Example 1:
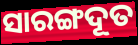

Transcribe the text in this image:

ସାରଙ୍ଗଦୂତ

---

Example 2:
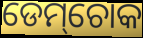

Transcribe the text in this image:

ଡେମ୍‌ଚୋକ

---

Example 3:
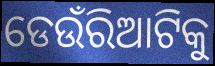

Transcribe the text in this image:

ଡେଉଁରିଆଟିକୁ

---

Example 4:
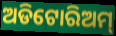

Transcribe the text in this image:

ଅଡିଟୋରିଅମ୍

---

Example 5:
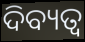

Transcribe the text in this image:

ଦିବ୍ୟତ୍ବ